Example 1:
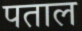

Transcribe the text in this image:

पताल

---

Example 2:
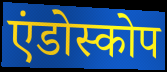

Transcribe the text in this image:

एंडोस्कोप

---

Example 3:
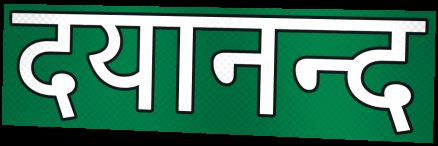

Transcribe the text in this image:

दयानन्द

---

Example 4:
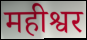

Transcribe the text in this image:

महीश्वर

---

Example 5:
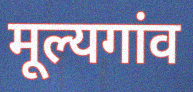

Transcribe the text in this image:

मूल्यगांव